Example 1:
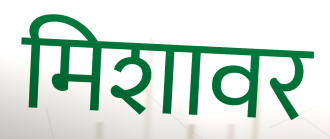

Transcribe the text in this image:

मिशावर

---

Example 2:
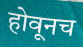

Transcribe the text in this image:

होवूनच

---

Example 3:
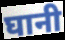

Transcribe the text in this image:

घानी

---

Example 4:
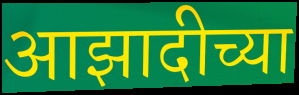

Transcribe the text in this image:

आझादीच्या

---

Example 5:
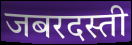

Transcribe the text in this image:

जबरदस्ती